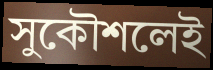
সুকৌশলেই